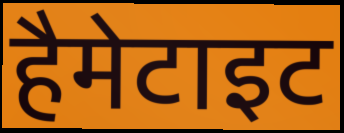
हैमेटाइट